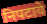
निपटाये